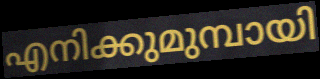
എനിക്കുമുമ്പായി